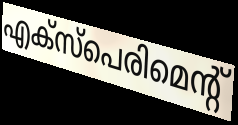
എക്സ്പെരിമെന്റ്